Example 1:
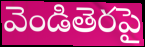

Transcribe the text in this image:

వెండితెరపై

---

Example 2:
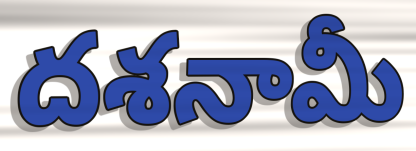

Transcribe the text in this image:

దశనామీ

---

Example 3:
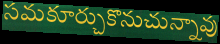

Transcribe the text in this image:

సమకూర్చుకొనుచున్నావు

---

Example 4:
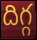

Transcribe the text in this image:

దిగ్గ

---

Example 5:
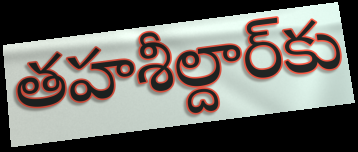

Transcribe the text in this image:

తహశీల్దార్‌కు